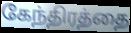
கேந்திரத்தை